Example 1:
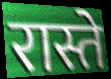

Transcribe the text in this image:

रास्ते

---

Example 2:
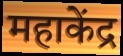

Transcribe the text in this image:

महाकेंद्र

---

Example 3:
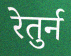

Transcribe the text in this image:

रेतुर्न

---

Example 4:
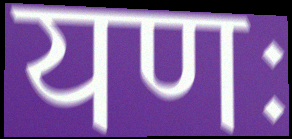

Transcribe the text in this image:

यणः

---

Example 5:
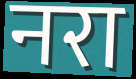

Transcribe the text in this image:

नरा